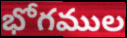
భోగముల